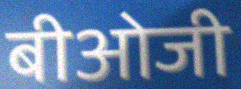
बीओजी